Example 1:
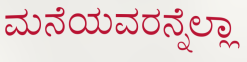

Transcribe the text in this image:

ಮನೆಯವರನ್ನೆಲ್ಲಾ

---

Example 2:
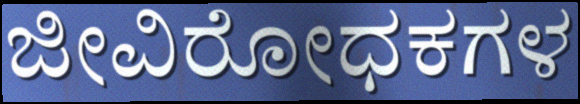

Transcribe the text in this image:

ಜೀವಿರೋಧಕಗಳ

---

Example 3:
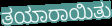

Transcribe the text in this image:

ತಯಾರಾಯಿತು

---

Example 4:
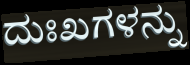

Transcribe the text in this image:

ದುಃಖಗಳನ್ನು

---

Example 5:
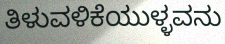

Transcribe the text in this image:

ತಿಳುವಳಿಕೆಯುಳ್ಳವನು